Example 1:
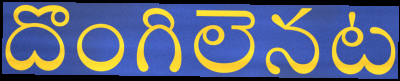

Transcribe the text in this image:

దొంగిలెనట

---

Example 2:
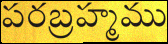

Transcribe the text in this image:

పరబ్రహ్మము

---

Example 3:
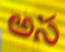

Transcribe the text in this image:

అస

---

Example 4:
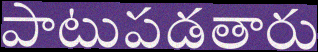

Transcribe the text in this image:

పాటుపడతారు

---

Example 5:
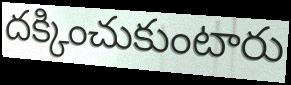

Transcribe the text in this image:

దక్కించుకుంటారు